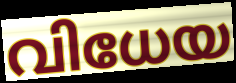
വിധേയ